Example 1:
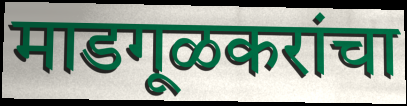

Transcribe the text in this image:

माडगूळकरांचा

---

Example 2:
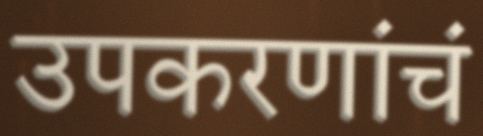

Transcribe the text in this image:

उपकरणांचं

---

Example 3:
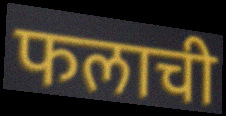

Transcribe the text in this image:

फलाची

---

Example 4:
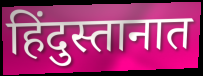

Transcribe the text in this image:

हिंदुस्तानात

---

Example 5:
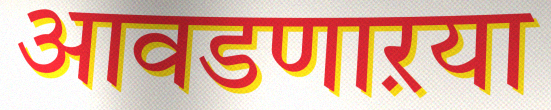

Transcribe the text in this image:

आवडणाऱया